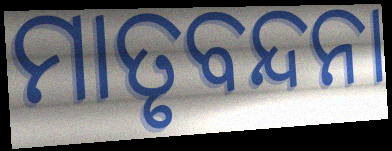
ମାତୃବନ୍ଦନା